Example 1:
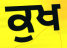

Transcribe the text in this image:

ਕੁਖ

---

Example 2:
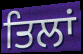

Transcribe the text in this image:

ਤਿਲਾਂ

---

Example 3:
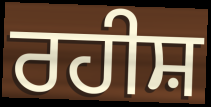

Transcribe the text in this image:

ਰਹੀਸ਼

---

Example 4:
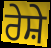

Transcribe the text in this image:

ਰੇਸ਼ੇ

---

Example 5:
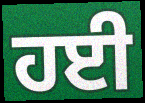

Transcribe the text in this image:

ਹਈ